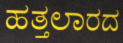
ಹತ್ತಲಾರದ